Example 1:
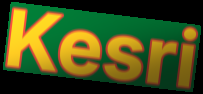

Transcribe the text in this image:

Kesri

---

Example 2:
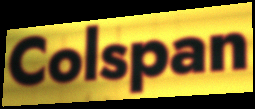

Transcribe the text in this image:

Colspan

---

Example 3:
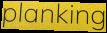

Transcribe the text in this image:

planking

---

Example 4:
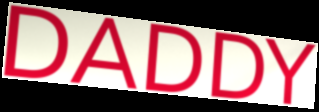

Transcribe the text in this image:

DADDY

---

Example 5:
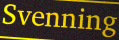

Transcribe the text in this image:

Svenning